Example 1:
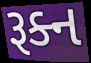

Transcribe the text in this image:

રૂક્ન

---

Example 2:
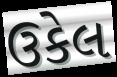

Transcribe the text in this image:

ઉકેલ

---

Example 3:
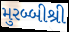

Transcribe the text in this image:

મુરબ્બીશ્રી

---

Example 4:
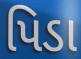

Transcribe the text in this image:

પિડા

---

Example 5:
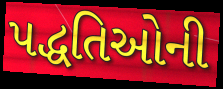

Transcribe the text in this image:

પદ્ધતિઓની